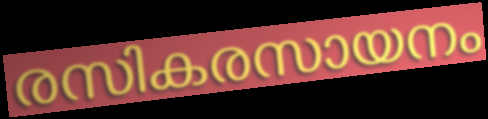
രസികരസായനം